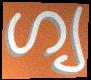
ഗ്യ